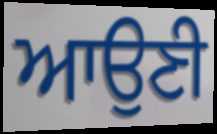
ਆਉਣੀ